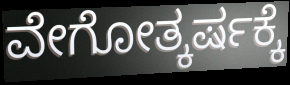
ವೇಗೋತ್ಕರ್ಷಕ್ಕೆ